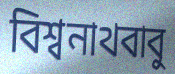
বিশ্বনাথবাবু